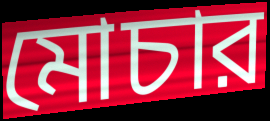
মোচার